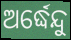
ଅର୍ଦ୍ଧେନ୍ଦୁ